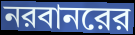
নরবানরের